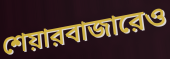
শেয়ারবাজারেও